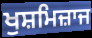
ਖੁਸ਼ਮਿਜ਼ਾਜ